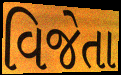
વિજેતા